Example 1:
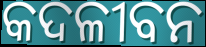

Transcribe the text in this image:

କଦଳୀବନ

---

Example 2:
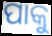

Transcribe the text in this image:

ପାକୁ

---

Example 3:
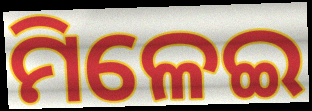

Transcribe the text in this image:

ମିଳେଇ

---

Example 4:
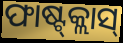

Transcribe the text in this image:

ଫାଷ୍ଟ୍‍କ୍ଲାସ୍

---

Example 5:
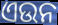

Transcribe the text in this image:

ଏଉନ